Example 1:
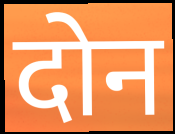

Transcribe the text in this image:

दोन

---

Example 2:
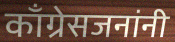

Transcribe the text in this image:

काँग्रेसजनांनी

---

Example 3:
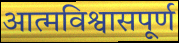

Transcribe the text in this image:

आत्मविश्वासपूर्ण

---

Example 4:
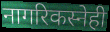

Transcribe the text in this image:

नागरिकस्नेही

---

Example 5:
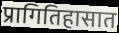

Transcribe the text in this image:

प्रागितिहासात